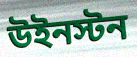
উইনস্টন